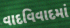
વાદવિવાદમાં